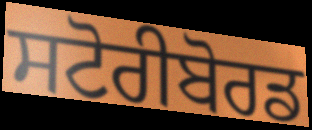
ਸਟੋਰੀਬੋਰਡ